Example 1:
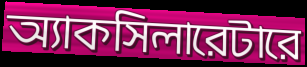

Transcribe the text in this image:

অ্যাকসিলারেটারে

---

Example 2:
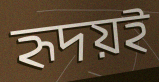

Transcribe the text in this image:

হৃদয়ই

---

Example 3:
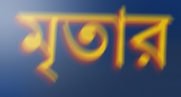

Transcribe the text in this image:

মৃতার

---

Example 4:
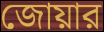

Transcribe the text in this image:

জোয়ার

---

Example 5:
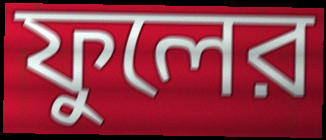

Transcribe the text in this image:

ফুলের